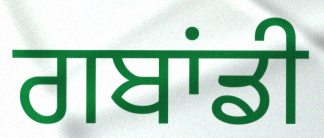
ਗਬਾਂਡੀ